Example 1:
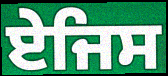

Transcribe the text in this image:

ਏਜਿਸ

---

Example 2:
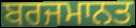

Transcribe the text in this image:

ਬਰਜਮਾਨਤ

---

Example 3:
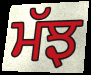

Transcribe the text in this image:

ਮੱਝ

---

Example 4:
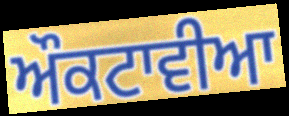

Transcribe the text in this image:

ਔਕਟਾਵੀਆ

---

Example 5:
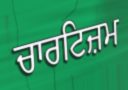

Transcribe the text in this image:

ਚਾਰਟਿਜ਼ਮ